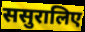
ससुरालिए